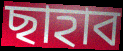
ছাহাব